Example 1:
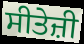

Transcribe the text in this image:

ਸੀਤੇਜ਼ੀ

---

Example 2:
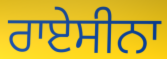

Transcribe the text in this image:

ਰਾਏਸੀਨਾ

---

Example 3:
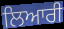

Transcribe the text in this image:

ਲਿਆਰੀ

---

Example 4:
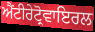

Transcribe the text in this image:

ਐਂਟੀਰੇਟ੍ਰੋਵਾਇਰਲ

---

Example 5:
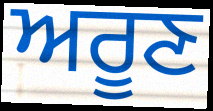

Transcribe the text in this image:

ਅਰੂਣ